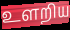
உளறிய